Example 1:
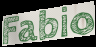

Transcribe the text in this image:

Fabio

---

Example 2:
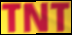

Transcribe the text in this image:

TNT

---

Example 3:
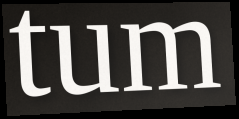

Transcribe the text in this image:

tum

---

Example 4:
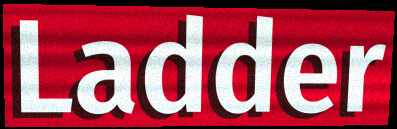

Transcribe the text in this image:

Ladder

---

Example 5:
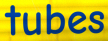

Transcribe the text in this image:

tubes